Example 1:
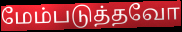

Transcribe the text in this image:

மேம்படுத்தவோ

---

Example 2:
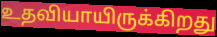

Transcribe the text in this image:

உதவியாயிருக்கிறது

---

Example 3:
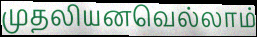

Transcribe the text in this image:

முதலியனவெல்லாம்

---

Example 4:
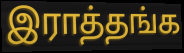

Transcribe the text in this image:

இராத்தங்க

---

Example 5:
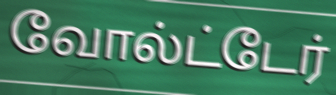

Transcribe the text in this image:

வோல்ட்டேர்